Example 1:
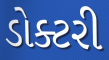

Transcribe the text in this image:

ડોક્ટરી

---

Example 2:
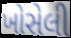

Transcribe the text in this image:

ખોસેલી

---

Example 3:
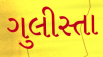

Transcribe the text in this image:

ગુલીસ્તા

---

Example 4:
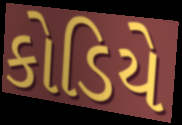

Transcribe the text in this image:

કોડિયે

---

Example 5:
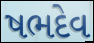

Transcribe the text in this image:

ષભદેવ